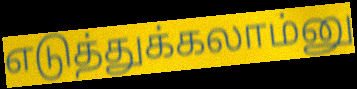
எடுத்துக்கலாம்னு